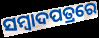
ସମ୍ୱାଦପତ୍ରରେ